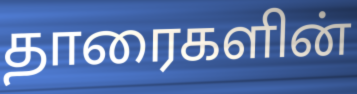
தாரைகளின்